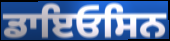
ਡਾਇਓਸਿਨ